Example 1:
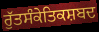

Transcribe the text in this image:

ਰੁੱਤਸੰਕੇਤਿਕਸ਼ਬਦ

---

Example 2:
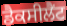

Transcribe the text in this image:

ਡੈਕਸੀਲੈਂਟ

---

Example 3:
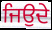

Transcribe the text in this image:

ਜਿਉਦੇ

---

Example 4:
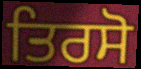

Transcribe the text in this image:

ਤਿਰਸੋ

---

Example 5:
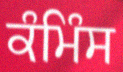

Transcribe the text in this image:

ਕੰਮਿੰਸ